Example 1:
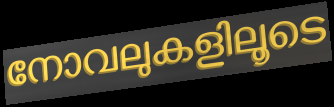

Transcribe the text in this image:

നോവലുകളിലൂടെ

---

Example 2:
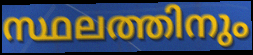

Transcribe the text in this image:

സ്ഥലത്തിനും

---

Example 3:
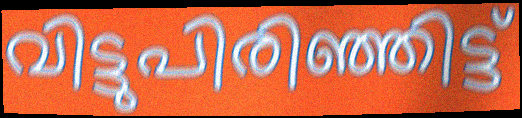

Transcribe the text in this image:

വിട്ടുപിരിഞ്ഞിട്ട്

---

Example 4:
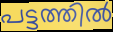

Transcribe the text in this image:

പട്ടത്തിൽ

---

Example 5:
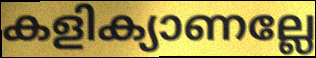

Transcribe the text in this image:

കളിക്യാണല്ലേ